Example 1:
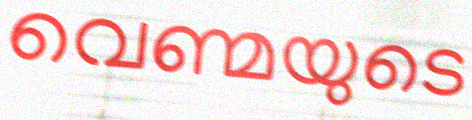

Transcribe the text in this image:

വെണ്മയുടെ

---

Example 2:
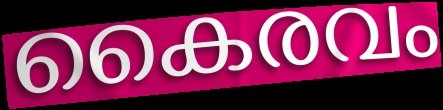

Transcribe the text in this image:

കൈരവം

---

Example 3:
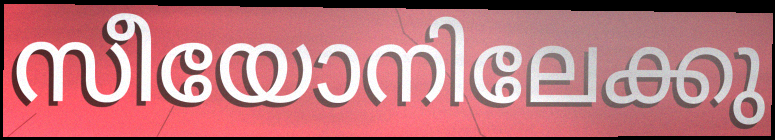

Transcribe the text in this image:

സീയോനിലേക്കു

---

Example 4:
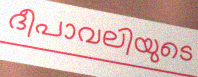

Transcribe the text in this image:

ദീപാവലിയുടെ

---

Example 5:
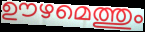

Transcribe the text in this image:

ഊഴമെത്തും